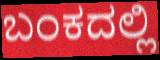
ಬಂಕದಲ್ಲಿ